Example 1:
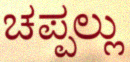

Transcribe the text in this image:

ಚಪ್ಪಲ್ಲು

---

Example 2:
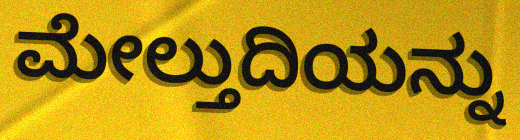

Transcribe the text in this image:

ಮೇಲ್ತುದಿಯನ್ನು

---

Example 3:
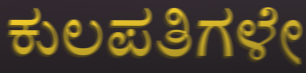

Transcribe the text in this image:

ಕುಲಪತಿಗಳೇ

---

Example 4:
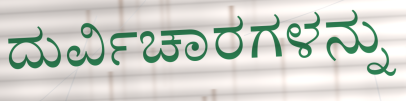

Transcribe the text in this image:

ದುರ್ವಿಚಾರಗಳನ್ನು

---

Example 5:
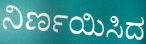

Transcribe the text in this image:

ನಿರ್ಣಯಿಸಿದ